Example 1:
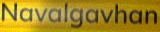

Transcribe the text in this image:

Navalgavhan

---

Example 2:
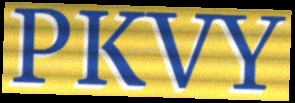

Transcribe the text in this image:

PKVY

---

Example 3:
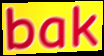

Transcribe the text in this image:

bak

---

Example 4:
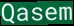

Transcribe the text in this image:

Qasem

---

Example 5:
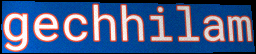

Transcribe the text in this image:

gechhilam